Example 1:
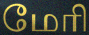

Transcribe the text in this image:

மேரி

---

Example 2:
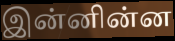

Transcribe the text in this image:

இன்னின்ன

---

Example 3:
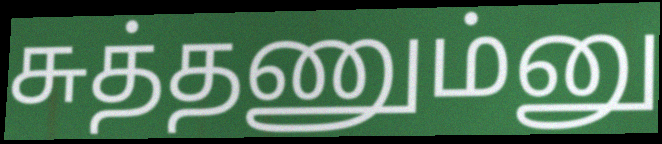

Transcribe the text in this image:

சுத்தணும்னு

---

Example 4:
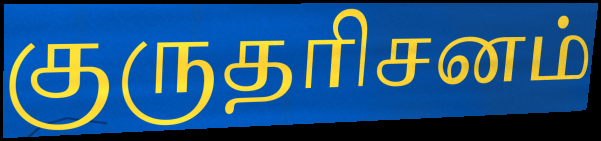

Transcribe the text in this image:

குருதரிசனம்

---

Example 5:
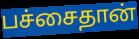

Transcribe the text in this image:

பச்சைதான்